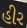
હીર